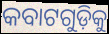
କବାଟଗୁଡ଼ିକୁ